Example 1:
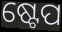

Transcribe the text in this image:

ଷ୍ଟେପ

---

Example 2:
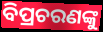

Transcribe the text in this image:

ବିପ୍ରଚରଣଙ୍କୁ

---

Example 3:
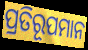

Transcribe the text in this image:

ପ୍ରତିରୂପମାନ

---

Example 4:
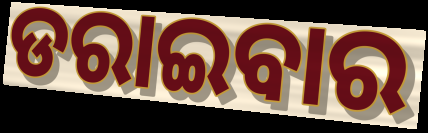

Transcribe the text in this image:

ଡରାଇବାର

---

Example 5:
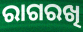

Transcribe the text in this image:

ରାଗରଖି